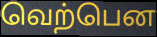
வெற்பென